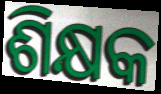
ଶିକ୍ଷକ